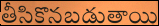
తీసికొనబడుతాయి